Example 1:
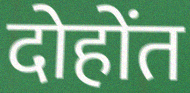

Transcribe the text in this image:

दोहोंत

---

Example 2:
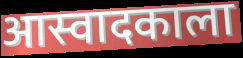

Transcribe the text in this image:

आस्वादकाला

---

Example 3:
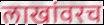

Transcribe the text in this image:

लाखांवरच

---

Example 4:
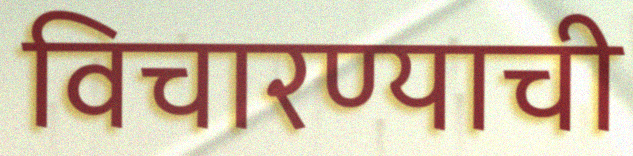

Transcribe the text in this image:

विचारण्याची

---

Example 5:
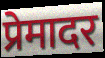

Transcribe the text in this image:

प्रेमादर